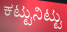
ಕಟ್ಟುನಿಟ್ಟು